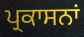
ਪ੍ਰਕਾਸਨਾਂ